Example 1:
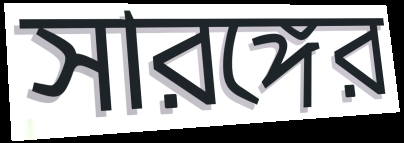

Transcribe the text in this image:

সারঙ্গের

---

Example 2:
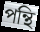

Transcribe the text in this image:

পন্থি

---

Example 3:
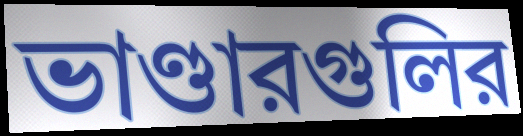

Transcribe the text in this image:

ভাণ্ডারগুলির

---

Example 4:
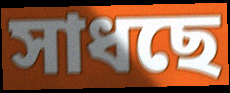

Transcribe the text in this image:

সাধছে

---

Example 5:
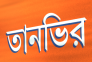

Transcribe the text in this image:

তানভির